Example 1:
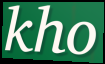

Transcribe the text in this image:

kho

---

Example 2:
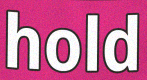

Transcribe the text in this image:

hold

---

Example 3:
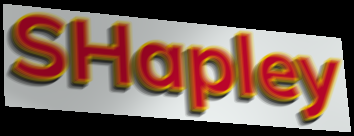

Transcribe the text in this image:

SHapley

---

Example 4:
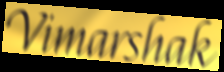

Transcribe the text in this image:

Vimarshak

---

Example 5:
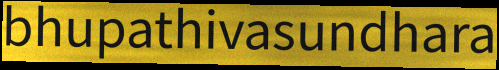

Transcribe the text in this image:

bhupathivasundhara